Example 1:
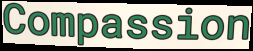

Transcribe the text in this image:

Compassion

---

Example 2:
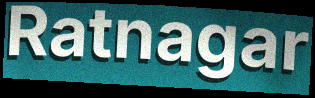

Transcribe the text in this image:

Ratnagar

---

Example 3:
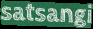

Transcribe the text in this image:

satsangi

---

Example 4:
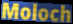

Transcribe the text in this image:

Moloch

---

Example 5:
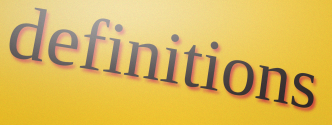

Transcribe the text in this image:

definitions